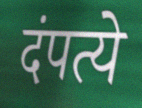
दंपत्ये